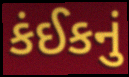
કંઈકનું